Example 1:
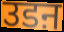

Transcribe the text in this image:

उडऩ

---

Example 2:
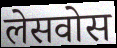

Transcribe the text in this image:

लेसवोस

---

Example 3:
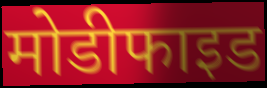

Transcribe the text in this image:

मोडीफाइड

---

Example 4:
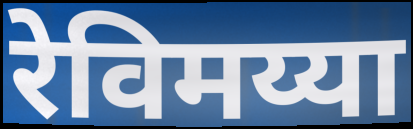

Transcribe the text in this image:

रेविमय्या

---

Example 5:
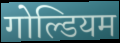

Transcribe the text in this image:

गोल्डियम